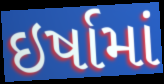
ઇર્ષામાં